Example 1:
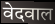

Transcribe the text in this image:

वेदवाल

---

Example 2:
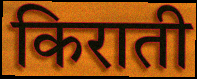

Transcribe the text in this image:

किराती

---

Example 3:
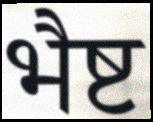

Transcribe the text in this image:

भैष्ट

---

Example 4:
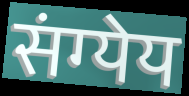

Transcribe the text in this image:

संग्येय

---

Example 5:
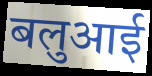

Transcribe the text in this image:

बलुआई